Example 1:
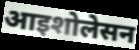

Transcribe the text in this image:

आइशोलेसन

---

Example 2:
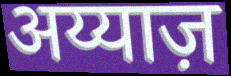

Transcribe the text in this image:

अय्याज़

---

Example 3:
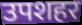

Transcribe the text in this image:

उपशहर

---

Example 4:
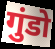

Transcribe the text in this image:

गुंडो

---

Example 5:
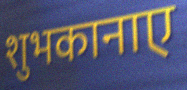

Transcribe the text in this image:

शुभकानाए